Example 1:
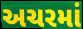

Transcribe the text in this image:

અચરમાં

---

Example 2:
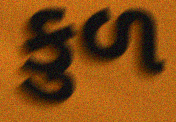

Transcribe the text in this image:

કુળ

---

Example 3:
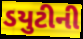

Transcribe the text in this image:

ડયુટીની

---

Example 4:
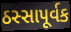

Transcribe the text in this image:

ઠસ્સાપૂર્વક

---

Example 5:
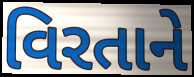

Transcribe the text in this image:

વિરતાને